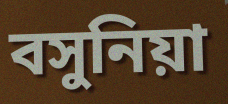
বসুনিয়া